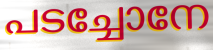
പടച്ചോനേ